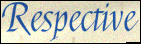
Respective